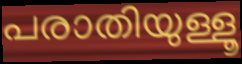
പരാതിയുള്ളൂ